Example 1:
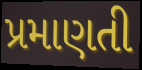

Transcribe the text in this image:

પ્રમાણતી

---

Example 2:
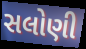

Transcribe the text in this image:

સલોણી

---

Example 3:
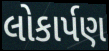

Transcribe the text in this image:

લોકાર્પણ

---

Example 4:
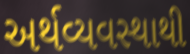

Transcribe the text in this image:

અર્થવ્યવસ્થાથી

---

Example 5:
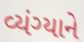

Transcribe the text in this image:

વ્યંગ્યાને